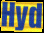
Hyd